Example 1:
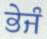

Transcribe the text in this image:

ਭੇਜੰ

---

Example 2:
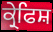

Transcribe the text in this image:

ਕ੍ਰੇਫਿਸ਼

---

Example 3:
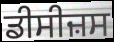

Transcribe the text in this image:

ਡੀਸੀਜ਼ਸ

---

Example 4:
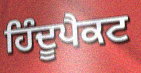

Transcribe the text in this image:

ਹਿੰਦੂਪੈਕਟ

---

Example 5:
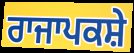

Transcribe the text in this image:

ਰਾਜਾਪਕਸ਼ੇ